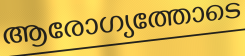
ആരോഗ്യത്തോടെ